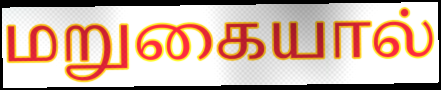
மறுகையால்